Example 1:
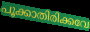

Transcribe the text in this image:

പൂക്കാതിരിക്കവേ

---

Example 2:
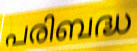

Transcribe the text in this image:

പരിബദ്ധ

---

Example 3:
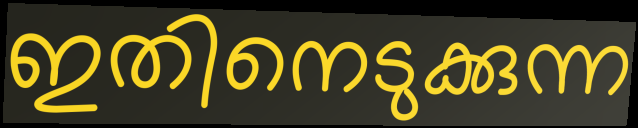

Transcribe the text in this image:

ഇതിനെടുക്കുന്ന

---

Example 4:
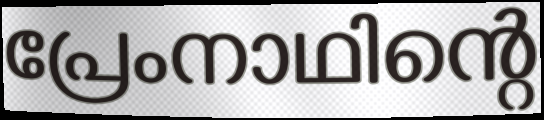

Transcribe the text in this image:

പ്രേംനാഥിന്റെ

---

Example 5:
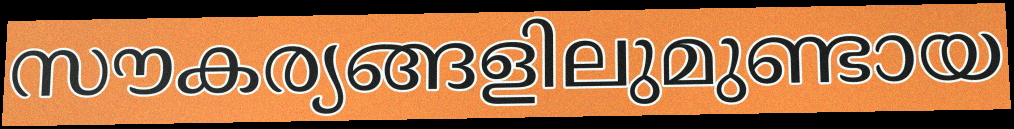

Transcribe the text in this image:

സൗകര്യങ്ങളിലുമുണ്ടായ